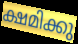
ക്ഷമിക്കു